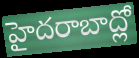
హైదరాబాద్లో